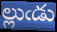
ల్లుఁడు